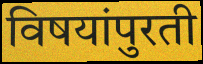
विषयांपुरती